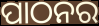
ପାଠନର